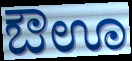
ಔಊ